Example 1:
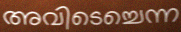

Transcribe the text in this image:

അവിടെച്ചെന്ന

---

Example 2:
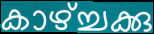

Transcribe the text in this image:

കാഴ്ച്ചക്കു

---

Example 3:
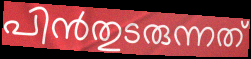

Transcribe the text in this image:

പിൻതുടരുന്നത്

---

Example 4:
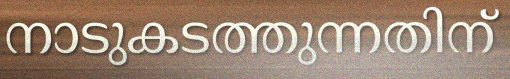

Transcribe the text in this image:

നാടുകടത്തുന്നതിന്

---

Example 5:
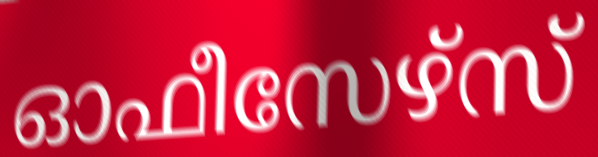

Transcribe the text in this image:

ഓഫീസേഴ്സ്